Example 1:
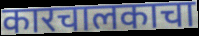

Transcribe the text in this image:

कारचालकाचा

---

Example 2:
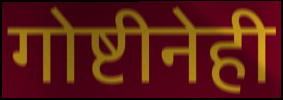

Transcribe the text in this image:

गोष्टीनेही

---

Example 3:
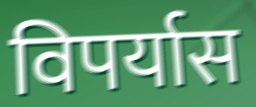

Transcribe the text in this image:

विपर्यास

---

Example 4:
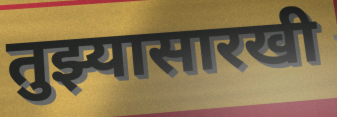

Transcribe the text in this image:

तुझ्यासारखी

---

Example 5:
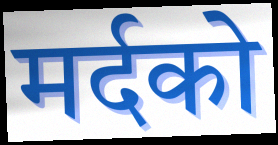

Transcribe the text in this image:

मर्दको